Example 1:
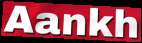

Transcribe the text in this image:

Aankh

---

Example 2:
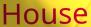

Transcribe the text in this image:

House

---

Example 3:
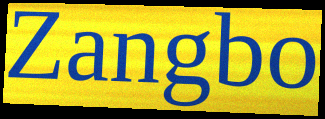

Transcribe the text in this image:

Zangbo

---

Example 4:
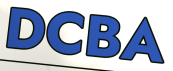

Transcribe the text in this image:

DCBA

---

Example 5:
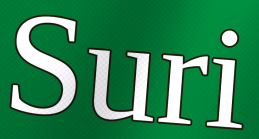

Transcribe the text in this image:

Suri